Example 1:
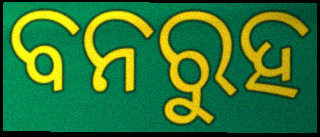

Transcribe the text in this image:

ବନରୁହ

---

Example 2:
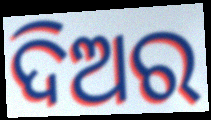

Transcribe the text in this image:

ଦିଅର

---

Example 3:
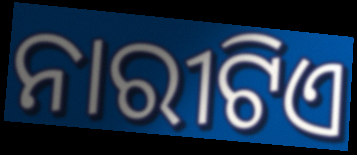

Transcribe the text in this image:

ନାରୀଟିଏ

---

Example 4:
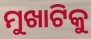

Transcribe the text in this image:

ମୁଖାଟିକୁ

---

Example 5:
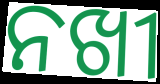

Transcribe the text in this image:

ନଖୀ